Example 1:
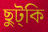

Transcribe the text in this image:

ছুট্কি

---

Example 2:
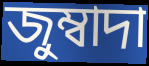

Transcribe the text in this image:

জুম্বাদা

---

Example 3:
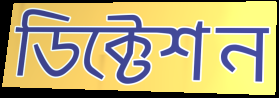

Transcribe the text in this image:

ডিক্টেশন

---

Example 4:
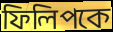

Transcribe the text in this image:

ফিলিপকে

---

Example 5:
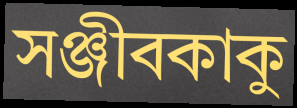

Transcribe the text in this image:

সঞ্জীবকাকু